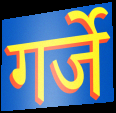
गर्जे